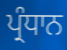
ਪ੍ਰੰਧਾਨ